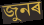
জুনৰ